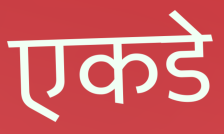
एकडे